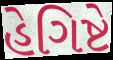
હેગિષ્ટે